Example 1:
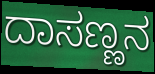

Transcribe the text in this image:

ದಾಸಣ್ಣನ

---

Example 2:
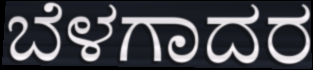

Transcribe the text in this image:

ಬೆಳಗಾದರ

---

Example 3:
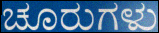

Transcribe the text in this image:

ಚೂರುಗಳು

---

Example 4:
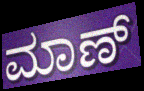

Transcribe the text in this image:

ಮಾಣ್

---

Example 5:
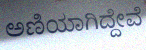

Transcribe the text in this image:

ಅಣಿಯಾಗಿದ್ದೇವೆ